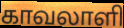
காவலாளி